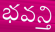
భవన్తి